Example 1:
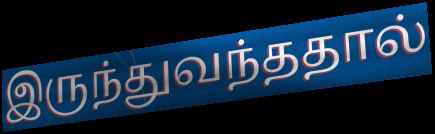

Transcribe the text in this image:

இருந்துவந்ததால்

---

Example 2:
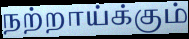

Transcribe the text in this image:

நற்றாய்க்கும்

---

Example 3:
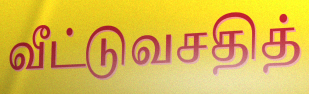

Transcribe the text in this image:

வீட்டுவசதித்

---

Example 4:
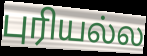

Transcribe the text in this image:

புரியல்ல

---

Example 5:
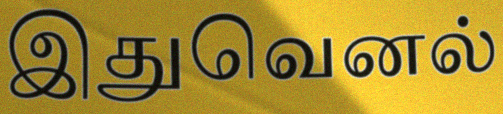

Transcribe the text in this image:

இதுவெனல்